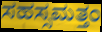
ಸಹಸ್ಸಮತ್ತಂ